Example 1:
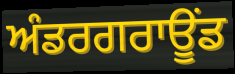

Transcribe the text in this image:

ਅੰਡਰਗਰਾਊਂਡ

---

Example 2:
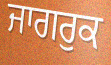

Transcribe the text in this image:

ਜਾਗਰੁਕ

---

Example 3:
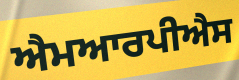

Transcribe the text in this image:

ਐਮਆਰਪੀਐਸ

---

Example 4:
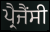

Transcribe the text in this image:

ਪ੍ਰੈਜੈਂਸੀ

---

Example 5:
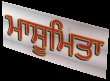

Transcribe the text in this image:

ਮਾਸੂਮਿਤਾ